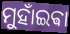
ମୁହାଁଇଵା